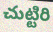
చుట్టిరి